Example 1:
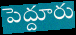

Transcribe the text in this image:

పెద్దూరు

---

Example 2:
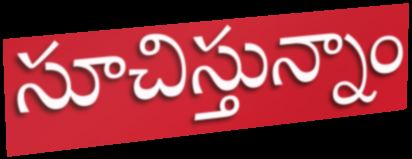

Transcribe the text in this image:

సూచిస్తున్నాం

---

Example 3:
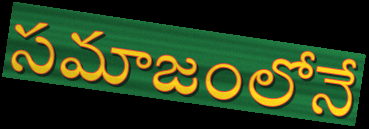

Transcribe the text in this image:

సమాజంలోనే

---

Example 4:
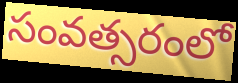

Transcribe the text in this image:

సంవత్సరంలో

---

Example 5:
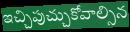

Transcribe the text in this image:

ఇచ్చిపుచ్చుకోవాల్సిన